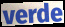
verde